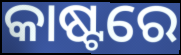
କାଷ୍ଟରେ